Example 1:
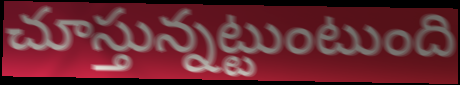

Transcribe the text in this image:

చూస్తున్నట్టుంటుంది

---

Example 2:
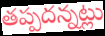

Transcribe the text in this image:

తప్పదన్నట్లు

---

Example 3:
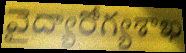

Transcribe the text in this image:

వైద్యారోగ్యశాఖ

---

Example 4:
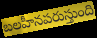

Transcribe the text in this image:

బలహీనపరుస్తుంది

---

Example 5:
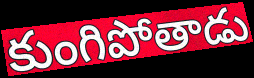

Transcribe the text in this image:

కుంగిపోతాడు